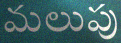
మలుపు